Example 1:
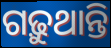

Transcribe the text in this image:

ଗଢ଼ୁଥାନ୍ତି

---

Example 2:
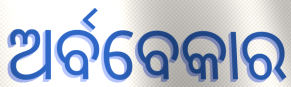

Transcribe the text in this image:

ଅର୍ବବେକାର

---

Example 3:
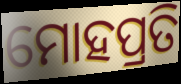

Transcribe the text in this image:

ମୋହପ୍ରତି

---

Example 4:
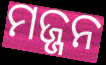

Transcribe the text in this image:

ମଜ୍ଜନ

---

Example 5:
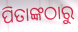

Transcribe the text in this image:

ପିତାଙ୍କଠାରୁ